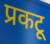
प्रकटू